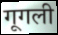
गूगली